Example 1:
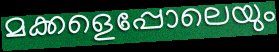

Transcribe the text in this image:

മക്കളെപ്പോലെയും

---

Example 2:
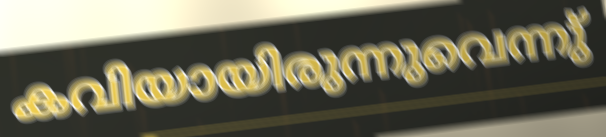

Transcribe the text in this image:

കവിയായിരുന്നുവെന്നു്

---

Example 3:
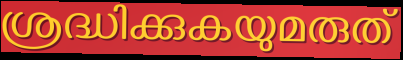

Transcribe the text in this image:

ശ്രദ്ധിക്കുകയുമരുത്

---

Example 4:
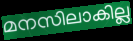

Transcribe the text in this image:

മനസിലാകില്ല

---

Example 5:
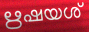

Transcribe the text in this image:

ഋഷയശ്